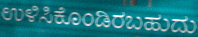
ಉಳಿಸಿಕೊಂಡಿರಬಹುದು